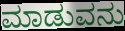
ಮಾಡುವನು